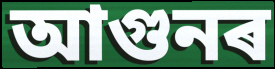
আগুনৰ